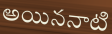
అయిననాటి